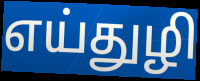
எய்துழி